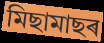
মিছামাছৰ